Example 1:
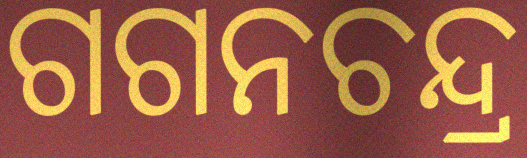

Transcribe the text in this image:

ଗଗନଚନ୍ଦ୍ର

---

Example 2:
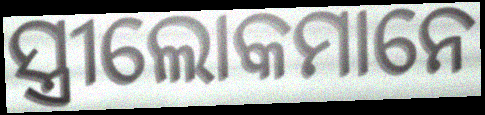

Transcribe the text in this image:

ସ୍ତ୍ରୀଲୋକମାନେ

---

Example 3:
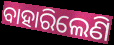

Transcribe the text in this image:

ବାହାରିଲେଣି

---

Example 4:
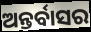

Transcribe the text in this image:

ଅନ୍ତର୍ବାସର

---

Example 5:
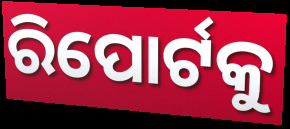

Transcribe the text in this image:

ରିପୋର୍ଟକୁ